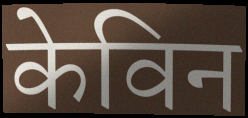
केविन